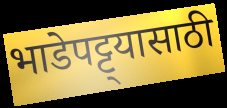
भाडेपट्ट्यासाठी